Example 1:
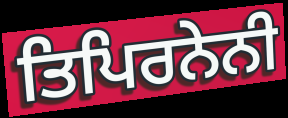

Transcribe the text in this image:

ਤਿਪਿਰਨੇਨੀ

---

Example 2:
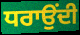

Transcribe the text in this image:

ਧਰਾਉਂਦੀ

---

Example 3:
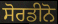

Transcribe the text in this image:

ਸੋਰਡੀਨੋ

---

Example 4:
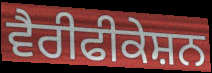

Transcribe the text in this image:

ਵੈਰੀਫੀਕੇਸ਼ਨ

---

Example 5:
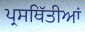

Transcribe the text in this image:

ਪ੍ਰਸਥਿੱਤੀਆਂ